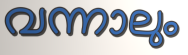
വന്നാലും